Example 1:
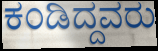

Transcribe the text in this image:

ಕಂಡಿದ್ದವರು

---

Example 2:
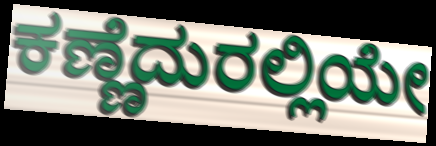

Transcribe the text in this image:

ಕಣ್ಣೆದುರಲ್ಲಿಯೇ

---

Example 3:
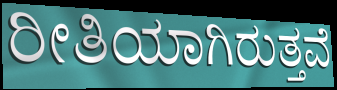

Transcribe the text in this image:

ರೀತಿಯಾಗಿರುತ್ತವೆ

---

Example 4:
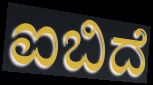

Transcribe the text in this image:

ಐಬಿದೆ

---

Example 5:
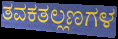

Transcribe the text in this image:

ತವಕತಲ್ಲಣಗಳ